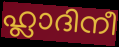
ഹ്ലാദിനീ